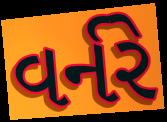
વર્નરે